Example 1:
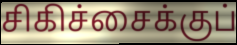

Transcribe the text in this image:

சிகிச்சைக்குப்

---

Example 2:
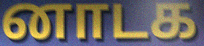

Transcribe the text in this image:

னாடக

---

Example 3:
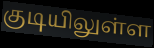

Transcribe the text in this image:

குடியிலுள்ள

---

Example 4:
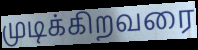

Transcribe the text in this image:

முடிக்கிறவரை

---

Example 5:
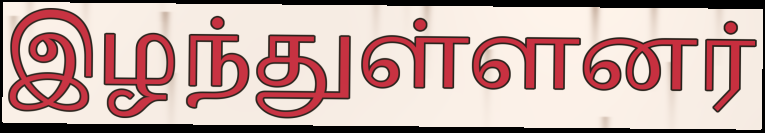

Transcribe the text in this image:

இழந்துள்ளனர்